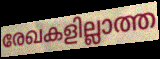
രേഖകളില്ലാത്ത